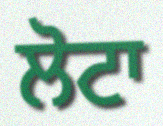
ਲੋਟਾ